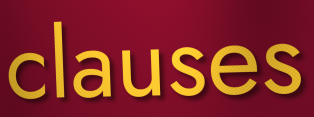
clauses